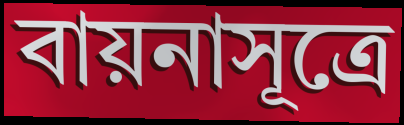
বায়নাসূত্রে